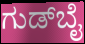
ಗುಡ್‌ಬೈ